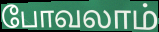
போவலாம்